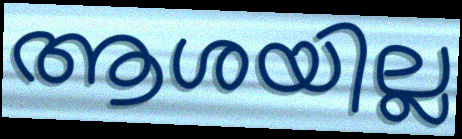
ആശയില്ല